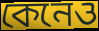
কেনেও